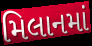
મિલાનમાં